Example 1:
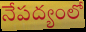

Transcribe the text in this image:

నేపద్యంలో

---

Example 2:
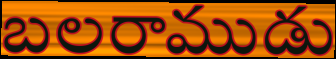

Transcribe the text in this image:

బలరాముడు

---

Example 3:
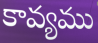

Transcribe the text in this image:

కావ్యము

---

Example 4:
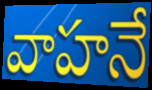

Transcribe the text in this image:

వాహనే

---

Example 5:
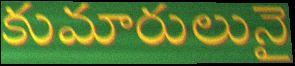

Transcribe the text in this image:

కుమారులునై